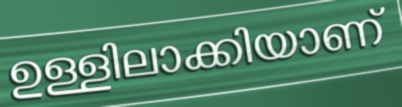
ഉള്ളിലാക്കിയാണ്